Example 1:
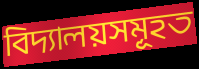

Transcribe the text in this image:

বিদ্যালয়সমূহত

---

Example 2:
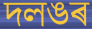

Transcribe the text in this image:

দলঙৰ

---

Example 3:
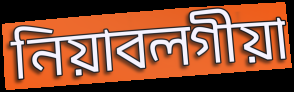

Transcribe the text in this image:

নিয়াবলগীয়া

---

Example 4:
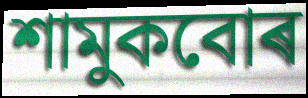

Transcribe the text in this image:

শামুকবোৰ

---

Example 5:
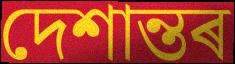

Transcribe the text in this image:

দেশান্তৰ